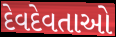
દેવદેવતાઓ